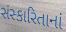
સંસ્કારિતાનાં